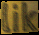
lik